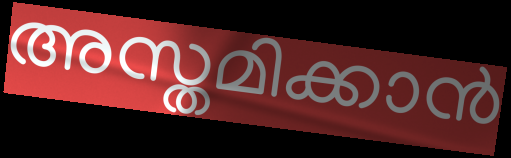
അസ്തമിക്കാൻ